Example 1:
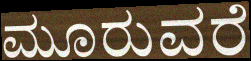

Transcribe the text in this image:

ಮೂರುವರೆ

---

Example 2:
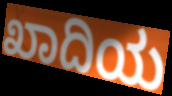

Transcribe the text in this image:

ಖಾದಿಯ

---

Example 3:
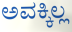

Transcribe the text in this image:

ಅವಕ್ಕಿಲ್ಲ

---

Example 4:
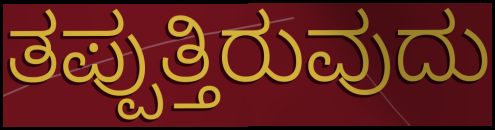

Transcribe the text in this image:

ತಪ್ಪುತ್ತಿರುವುದು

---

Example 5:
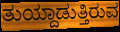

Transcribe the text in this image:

ತುಯ್ದಾಡುತ್ತಿರುವ